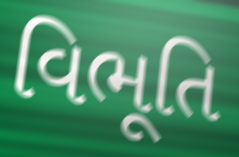
વિભૂતિ